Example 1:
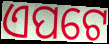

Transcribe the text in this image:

ଏପଟେ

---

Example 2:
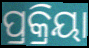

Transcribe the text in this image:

ପ୍ରକ୍ରିୟା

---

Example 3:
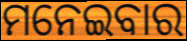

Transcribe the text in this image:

ମନେଇବାର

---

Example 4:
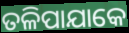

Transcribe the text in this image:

ତଳିପାଯାକେ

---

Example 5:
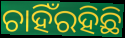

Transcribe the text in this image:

ଚାହିଁରହିଛି